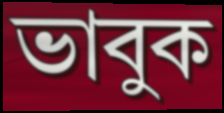
ভাবুক